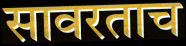
सावरताच